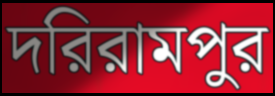
দরিরামপুর